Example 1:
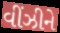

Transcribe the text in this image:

વીંઝીને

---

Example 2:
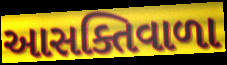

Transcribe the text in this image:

આસક્તિવાળા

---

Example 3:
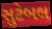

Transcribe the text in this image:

સુટેબલ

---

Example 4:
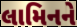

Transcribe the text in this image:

લામિનને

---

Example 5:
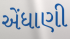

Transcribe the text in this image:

એંધાણી